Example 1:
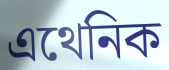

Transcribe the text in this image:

এথেনিক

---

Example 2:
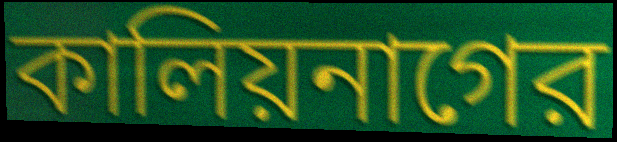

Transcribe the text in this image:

কালিয়নাগের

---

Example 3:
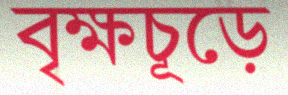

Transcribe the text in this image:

বৃক্ষচূড়ে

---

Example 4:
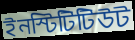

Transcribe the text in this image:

ইনস্টিটিটিউট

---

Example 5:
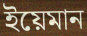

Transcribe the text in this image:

ইয়েমান